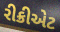
રીક્રીએટ